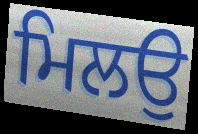
ਮਿਲਉ